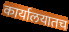
कार्यालयातच